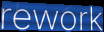
rework